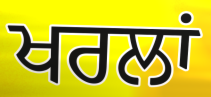
ਖਰਲਾਂ